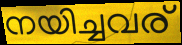
നയിച്ചവര്